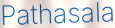
Pathasala